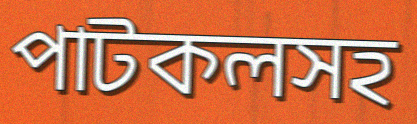
পাটকলসহ